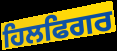
ਹਿਲਫਿਗਰ